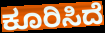
ಕೂರಿಸಿದೆ